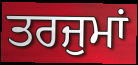
ਤਰਜੁਮਾਂ